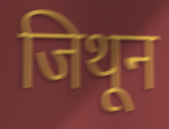
जिथून